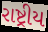
રાષ્ટ્રીય